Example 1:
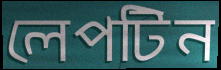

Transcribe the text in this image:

লেপটিন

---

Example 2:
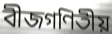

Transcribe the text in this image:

বীজগণিতীয়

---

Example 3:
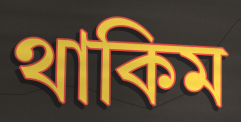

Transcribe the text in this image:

থাকিম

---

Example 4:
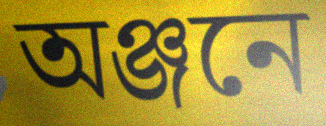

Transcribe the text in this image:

অঞ্জনে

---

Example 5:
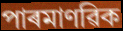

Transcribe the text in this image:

পাৰমাণৱিক